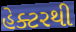
હેક્ટરથી